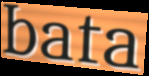
bata